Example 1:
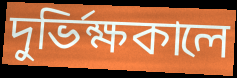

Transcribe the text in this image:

দুর্ভিক্ষকালে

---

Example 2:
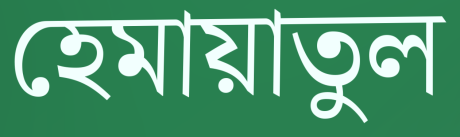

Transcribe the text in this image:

হেমায়াতুল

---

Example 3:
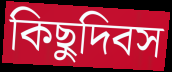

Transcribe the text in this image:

কিছুদিবস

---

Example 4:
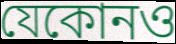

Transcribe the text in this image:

যেকোনও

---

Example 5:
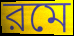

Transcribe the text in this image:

রমে